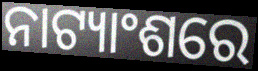
ନାଟ୍ୟାଂଶରେ